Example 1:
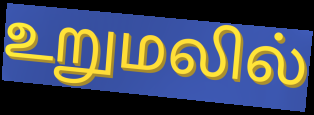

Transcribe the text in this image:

உறுமலில்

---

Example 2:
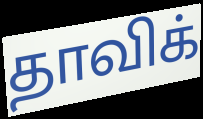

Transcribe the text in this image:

தாவிக்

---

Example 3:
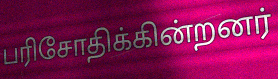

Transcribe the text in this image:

பரிசோதிக்கின்றனர்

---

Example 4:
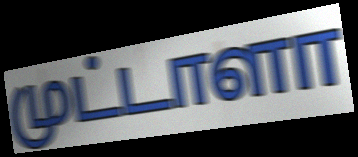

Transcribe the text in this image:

முட்டாளா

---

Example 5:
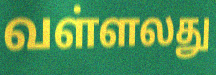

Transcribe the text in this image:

வள்ளலது